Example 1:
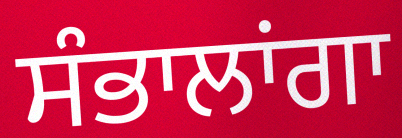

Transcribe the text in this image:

ਸੰਭਾਲਾਂਗਾ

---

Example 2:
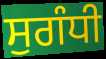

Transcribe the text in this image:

ਸੁਗੰਧੀ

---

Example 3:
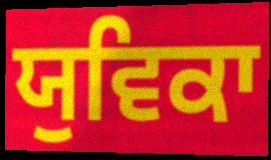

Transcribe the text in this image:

ਯੁਵਿਕਾ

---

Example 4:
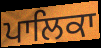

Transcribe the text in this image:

ਪਾਲਿਕਾ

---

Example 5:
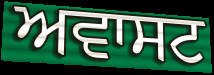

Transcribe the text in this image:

ਅਵਾਸਟ